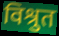
विश्रुत